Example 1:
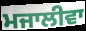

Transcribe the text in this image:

ਮਜਾਲੀਵਾ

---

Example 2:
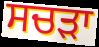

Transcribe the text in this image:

ਸਚੜਾ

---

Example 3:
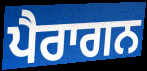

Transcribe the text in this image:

ਪੈਰਾਗਨ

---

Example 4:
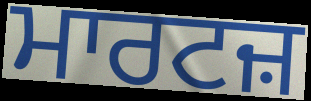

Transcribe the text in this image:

ਮਾਰਟਜ਼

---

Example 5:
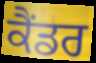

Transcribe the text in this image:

ਕੈਂਡਰ